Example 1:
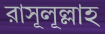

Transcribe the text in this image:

রাসূলূল্লাহ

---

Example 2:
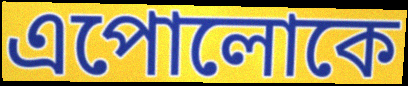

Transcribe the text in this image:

এপোলোকে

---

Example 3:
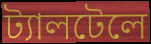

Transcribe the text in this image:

ট্যালটেলে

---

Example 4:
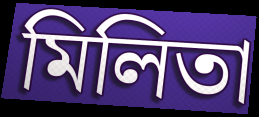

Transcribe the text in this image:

মিলিতা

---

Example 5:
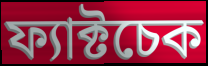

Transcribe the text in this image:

ফ্যাক্টচেক